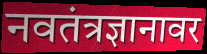
नवतंत्रज्ञानावर